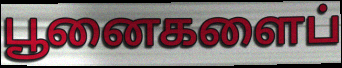
பூனைகளைப்